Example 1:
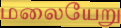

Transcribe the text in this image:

மலையேறு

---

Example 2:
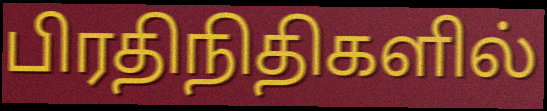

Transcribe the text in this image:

பிரதிநிதிகளில்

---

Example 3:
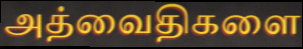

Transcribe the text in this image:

அத்வைதிகளை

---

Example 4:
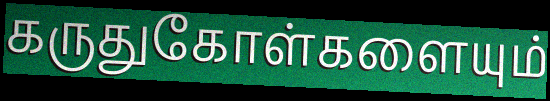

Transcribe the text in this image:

கருதுகோள்களையும்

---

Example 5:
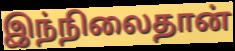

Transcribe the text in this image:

இந்நிலைதான்